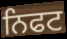
ਨਿਫਟ